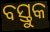
ବସ୍ତୁକ